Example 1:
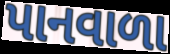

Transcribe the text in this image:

પાનવાળા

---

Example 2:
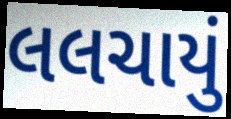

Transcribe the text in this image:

લલચાયું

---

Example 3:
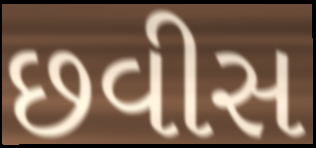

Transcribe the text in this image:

છવીસ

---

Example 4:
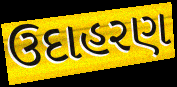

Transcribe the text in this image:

ઉદાહરણ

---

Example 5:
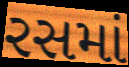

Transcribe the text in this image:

રસમાં